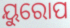
ୟୁରୋପ